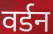
वर्डन